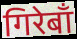
गिरेबाँ